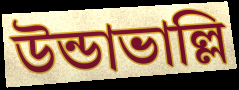
উন্ডাভাল্লি